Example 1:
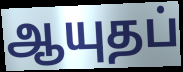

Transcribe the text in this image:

ஆயுதப்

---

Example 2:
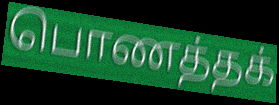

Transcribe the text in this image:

பொணத்தக்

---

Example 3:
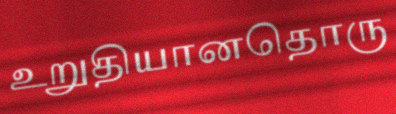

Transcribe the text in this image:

உறுதியானதொரு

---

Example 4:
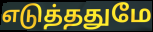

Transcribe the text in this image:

எடுத்ததுமே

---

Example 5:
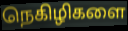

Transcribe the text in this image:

நெகிழிகளை